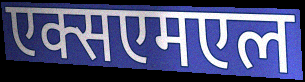
एक्सएमएल